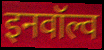
इनवॉल्व